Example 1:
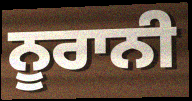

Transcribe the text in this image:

ਨੂਰਾਨੀ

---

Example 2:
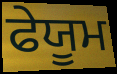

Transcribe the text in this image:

ਫੇਯੂਮ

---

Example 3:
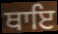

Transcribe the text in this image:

ਥਾਇ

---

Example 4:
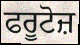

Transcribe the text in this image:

ਫਰੂਟੋਜ਼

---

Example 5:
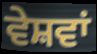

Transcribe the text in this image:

ਵੇਸ਼ਵਾਂ